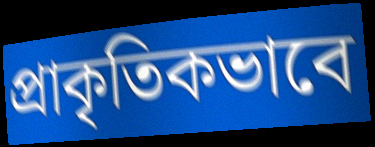
প্রাকৃতিকভাবে